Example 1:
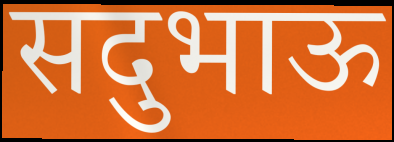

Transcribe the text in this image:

सदुभाऊ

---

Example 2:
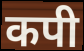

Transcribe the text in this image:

कपी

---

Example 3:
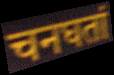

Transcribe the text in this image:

चनघतां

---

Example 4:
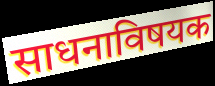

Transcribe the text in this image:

साधनाविषयक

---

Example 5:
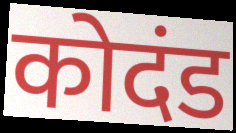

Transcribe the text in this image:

कोदंड